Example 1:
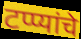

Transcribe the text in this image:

टप्प्यांचे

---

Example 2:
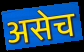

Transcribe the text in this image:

असेच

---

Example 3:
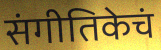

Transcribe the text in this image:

संगीतिकेचं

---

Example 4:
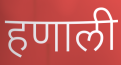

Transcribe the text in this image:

हणाली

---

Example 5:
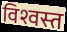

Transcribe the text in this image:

विश्वस्त